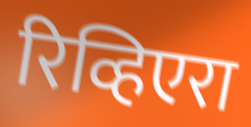
रिव्हिएरा